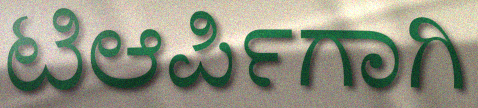
ಟಿಆರ್ಪಿಗಾಗಿ